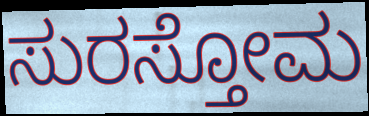
ಸುರಸ್ತೋಮ